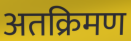
अतक्रिमण